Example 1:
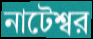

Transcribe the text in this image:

নাটেশ্বর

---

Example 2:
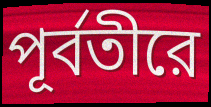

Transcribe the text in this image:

পূর্বতীরে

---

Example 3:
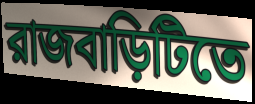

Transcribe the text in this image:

রাজবাড়িটিতে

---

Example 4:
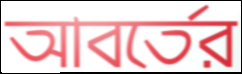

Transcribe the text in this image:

আবর্তের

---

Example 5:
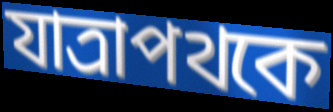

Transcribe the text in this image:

যাত্রাপথকে